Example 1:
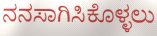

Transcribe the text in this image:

ನನಸಾಗಿಸಿಕೊಳ್ಳಲು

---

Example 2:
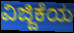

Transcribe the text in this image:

ವಿಜ್ಜಿಕೆಯ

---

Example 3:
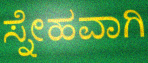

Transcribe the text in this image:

ಸ್ನೇಹವಾಗಿ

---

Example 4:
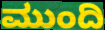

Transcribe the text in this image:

ಮುಂದಿ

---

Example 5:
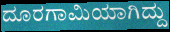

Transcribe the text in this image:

ದೂರಗಾಮಿಯಾಗಿದ್ದು